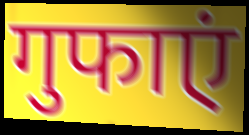
गुफाएं